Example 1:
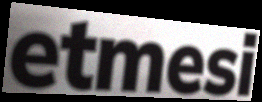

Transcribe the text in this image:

etmesi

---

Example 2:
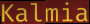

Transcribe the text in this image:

Kalmia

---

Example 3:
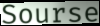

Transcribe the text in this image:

Sourse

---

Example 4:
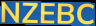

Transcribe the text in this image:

NZEBC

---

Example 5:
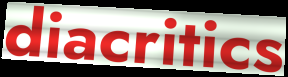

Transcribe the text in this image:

diacritics